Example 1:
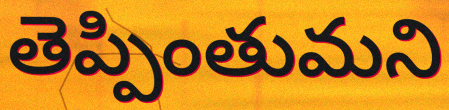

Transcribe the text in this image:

తెప్పింతుమని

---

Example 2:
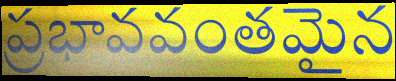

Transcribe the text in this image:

ప్రభావవంతమైన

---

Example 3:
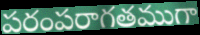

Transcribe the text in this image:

పరంపరాగతముగా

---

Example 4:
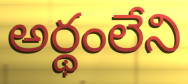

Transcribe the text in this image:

అర్థంలేని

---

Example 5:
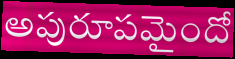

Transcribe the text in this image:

అపురూపమైందో